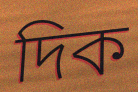
দিক